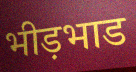
भीड़भाड